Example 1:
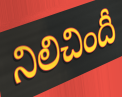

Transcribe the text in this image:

నిలిచిందీ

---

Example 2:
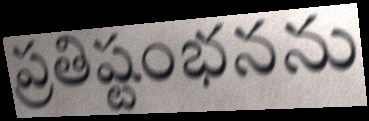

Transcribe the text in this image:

ప్రతిష్టంభనను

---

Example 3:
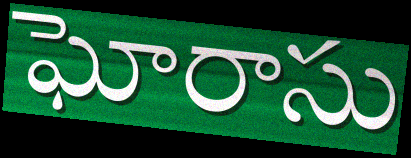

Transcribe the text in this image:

ఘోరాసు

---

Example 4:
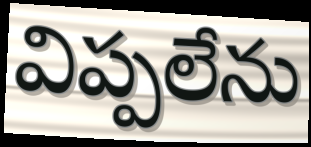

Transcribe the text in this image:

విప్పలేను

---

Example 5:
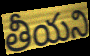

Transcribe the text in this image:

తీయని